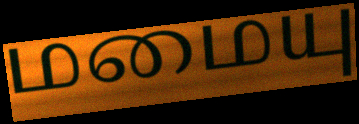
மமையு